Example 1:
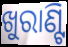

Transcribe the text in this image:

ଖୁରାଣ୍ଟି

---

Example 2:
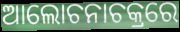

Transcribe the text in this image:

ଆଲୋଚନାଚକ୍ରରେ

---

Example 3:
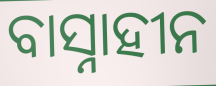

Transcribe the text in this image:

ବାସ୍ନାହୀନ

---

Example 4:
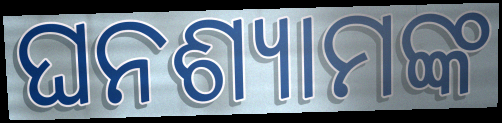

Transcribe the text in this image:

ଘନଶ୍ୟାମଙ୍କ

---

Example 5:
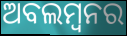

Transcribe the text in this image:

ଅବଲମ୍ବନର